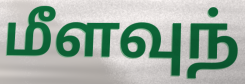
மீளவுந்